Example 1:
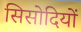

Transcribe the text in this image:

सिसोदियों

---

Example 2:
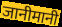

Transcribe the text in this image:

जानीमानी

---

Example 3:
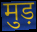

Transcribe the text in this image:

मुड़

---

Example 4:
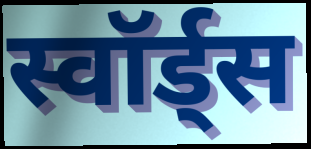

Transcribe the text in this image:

स्वॉर्ड्स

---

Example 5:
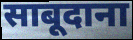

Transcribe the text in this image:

साबूदाना